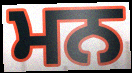
ਮਨ